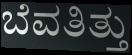
ಬೆವತಿತ್ತು